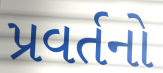
પ્રવર્તનો